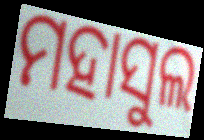
ମହାସୁଲ